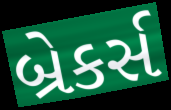
બ્રેકર્સ